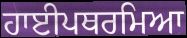
ਹਾਈਪਥਰਮਿਆ